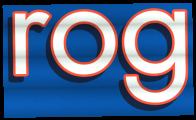
rog